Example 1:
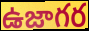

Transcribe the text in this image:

ఉజాగర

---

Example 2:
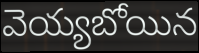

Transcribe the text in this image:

వెయ్యబోయిన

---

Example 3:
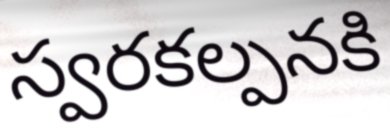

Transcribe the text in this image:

స్వరకల్పనకి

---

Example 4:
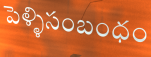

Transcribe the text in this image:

పెళ్ళిసంబంధం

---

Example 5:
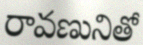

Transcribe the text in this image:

రావణునితో